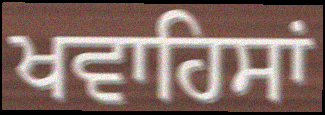
ਖਵਾਹਿਸਾਂ